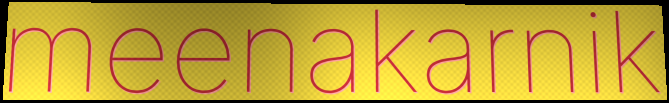
meenakarnik